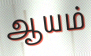
ஆயம்